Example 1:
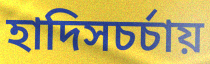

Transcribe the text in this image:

হাদিসচর্চায়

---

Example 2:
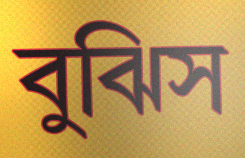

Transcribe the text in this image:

বুঝিস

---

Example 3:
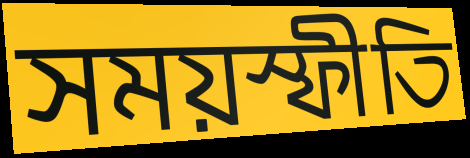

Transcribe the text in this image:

সময়স্ফীতি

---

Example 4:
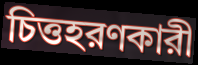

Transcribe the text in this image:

চিত্তহরণকারী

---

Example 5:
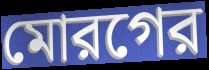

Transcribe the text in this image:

মোরগের